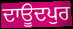
ਦਾਊਦਪੁਰ